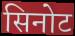
सिनोट